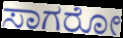
ಸಾಗರೋ